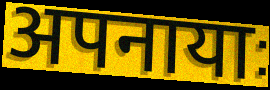
अपनायाः